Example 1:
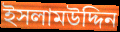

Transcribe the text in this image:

ইসলামউদ্দিন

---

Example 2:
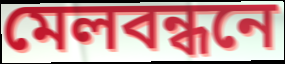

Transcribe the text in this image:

মেলবন্ধনে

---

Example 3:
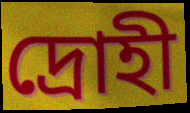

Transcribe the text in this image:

দ্রোহী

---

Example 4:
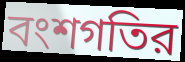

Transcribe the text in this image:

বংশগতির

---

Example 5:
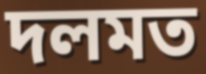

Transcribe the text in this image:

দলমত